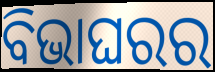
ବିଭାଘରର